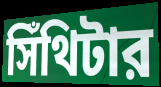
সিঁথিটার